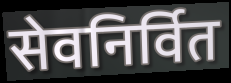
सेवनिर्वित